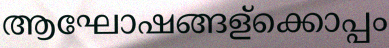
ആഘോഷങ്ങള്ക്കൊപ്പം